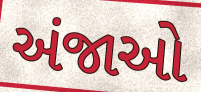
અંજાઓ